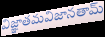
విజ్ఞాతమవిజానతామ్